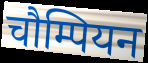
चौम्पियन